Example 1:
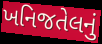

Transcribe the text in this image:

ખનિજતેલનું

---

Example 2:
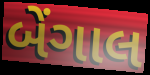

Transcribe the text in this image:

બેંગાલ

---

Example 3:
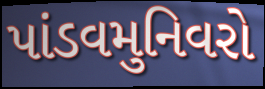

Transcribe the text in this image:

પાંડવમુનિવરો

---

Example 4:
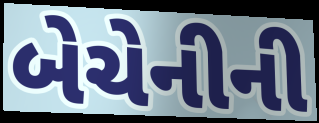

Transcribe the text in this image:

બેચેનીની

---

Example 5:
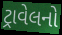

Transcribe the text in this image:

ટ્રાવેલનો